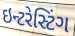
ઇન્ટરેસ્ટિંગ